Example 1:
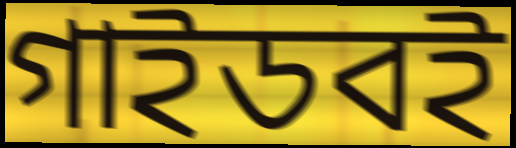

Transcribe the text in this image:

গাইডবই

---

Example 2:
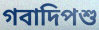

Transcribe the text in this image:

গবাদিপশু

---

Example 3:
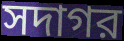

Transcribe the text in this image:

সদাগর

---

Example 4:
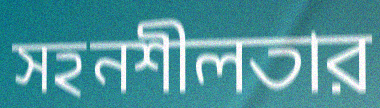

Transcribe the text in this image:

সহনশীলতার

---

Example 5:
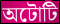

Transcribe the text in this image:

অটোটি